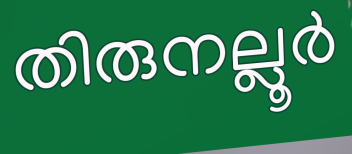
തിരുനല്ലൂർ